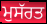
ਮੁਸੱਰਤ